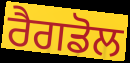
ਰੈਗਡੋਲ